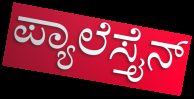
ಪ್ಯಾಲೆಸ್ತೈನ್